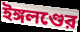
ইঙ্গলণ্ডের